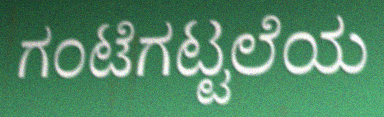
ಗಂಟೆಗಟ್ಟಲೆಯ